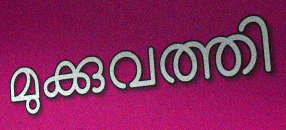
മുക്കുവത്തി